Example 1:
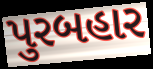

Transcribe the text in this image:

પુરબહાર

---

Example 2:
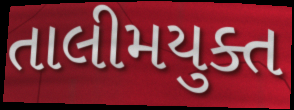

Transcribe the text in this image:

તાલીમયુક્ત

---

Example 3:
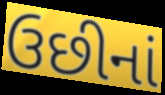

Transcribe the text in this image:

ઉછીનાં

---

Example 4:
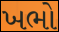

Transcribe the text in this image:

ખભો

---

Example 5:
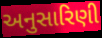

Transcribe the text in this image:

અનુસારિણી